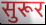
सुरूर